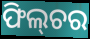
ଫିଲ୍‌ଚର